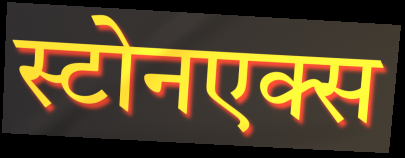
स्टोनएक्स